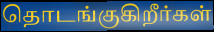
தொடங்குகிறீர்கள்